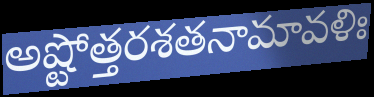
అష్టోత్తరశతనామావళిః